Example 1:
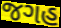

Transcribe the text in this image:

જગહ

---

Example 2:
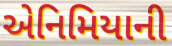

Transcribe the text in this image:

એનિમિયાની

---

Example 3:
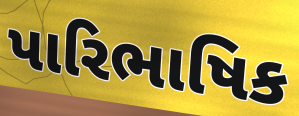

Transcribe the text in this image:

પારિભાષિક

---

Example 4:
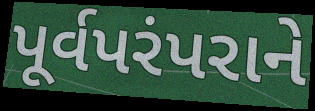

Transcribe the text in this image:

પૂર્વપરંપરાને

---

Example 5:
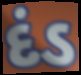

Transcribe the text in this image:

દંડ